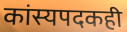
कांस्यपदकही